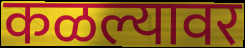
कळल्यावर